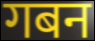
गबन